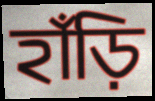
হাঁড়ি